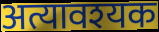
अत्यावश्‍यक